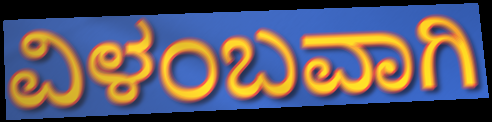
ವಿಳಂಬವಾಗಿ